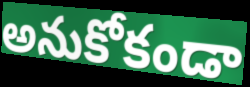
అనుకోకండా